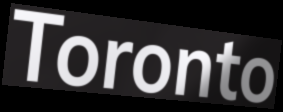
Toronto